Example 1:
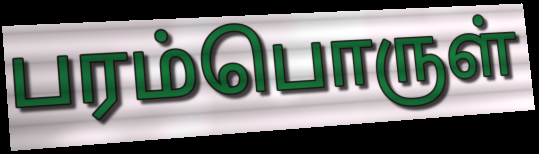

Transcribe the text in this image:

பரம்பொருள்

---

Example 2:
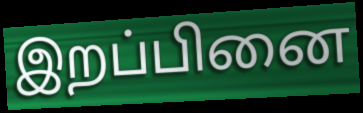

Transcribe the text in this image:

இறப்பினை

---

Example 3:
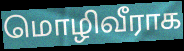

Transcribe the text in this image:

மொழிவீராக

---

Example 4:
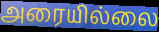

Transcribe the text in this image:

அரையில்லை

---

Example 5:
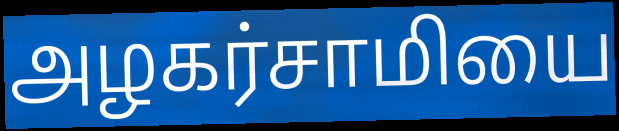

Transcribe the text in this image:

அழகர்சாமியை